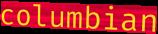
columbian